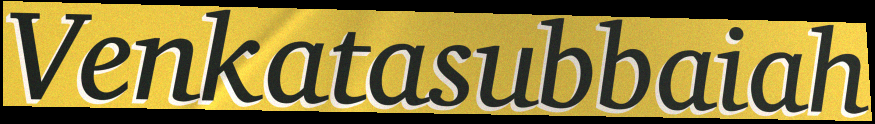
Venkatasubbaiah